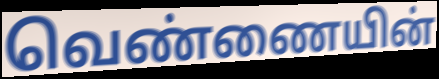
வெண்ணையின்